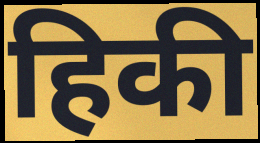
हिकी